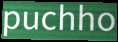
puchho